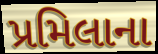
પ્રમિલાના